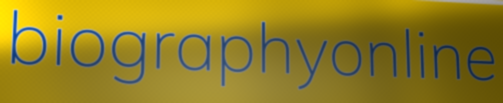
biographyonline